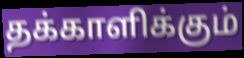
தக்காளிக்கும்